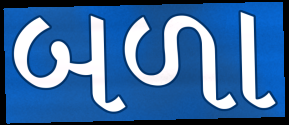
બળા